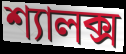
শ্যালক্স